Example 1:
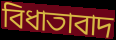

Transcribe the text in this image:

বিধাতাবাদ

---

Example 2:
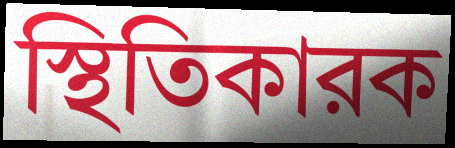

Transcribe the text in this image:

স্থিতিকারক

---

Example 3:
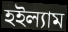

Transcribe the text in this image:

হইল্যাম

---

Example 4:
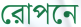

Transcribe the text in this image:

রোপনে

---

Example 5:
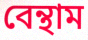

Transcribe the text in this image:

বেন্থাম